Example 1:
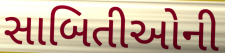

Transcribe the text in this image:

સાબિતીઓની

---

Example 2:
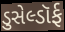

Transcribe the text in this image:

ડુસેલ્ડૉર્ફ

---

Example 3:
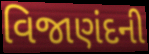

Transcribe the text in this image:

વિજાણંદની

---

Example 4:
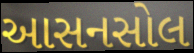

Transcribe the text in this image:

આસનસોલ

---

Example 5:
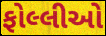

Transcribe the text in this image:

ફોલ્લીઓ